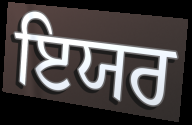
ਇਯਰ